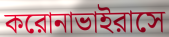
করোনাভাইরাসে